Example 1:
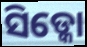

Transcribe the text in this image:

ସିଡ୍କୋ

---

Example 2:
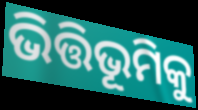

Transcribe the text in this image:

ଭିତ୍ତିଭୂମିକୁ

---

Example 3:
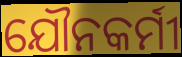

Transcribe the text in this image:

ଯୌନକର୍ମୀ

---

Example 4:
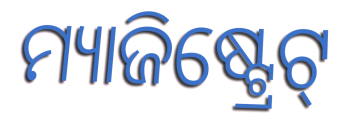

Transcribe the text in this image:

ମ୍ୟାଜିଷ୍ଟ୍ରେଟ୍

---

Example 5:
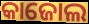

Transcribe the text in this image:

କାଜୋଲ